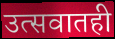
उत्सवातही